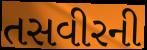
તસવીરની